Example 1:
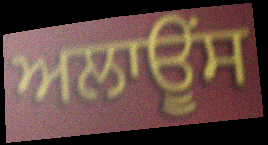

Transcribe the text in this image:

ਅਲਾਊੰਸ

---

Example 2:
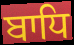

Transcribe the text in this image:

ਬਾਧਿ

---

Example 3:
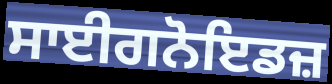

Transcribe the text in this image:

ਸਾਈਗਨੋਇਡਜ਼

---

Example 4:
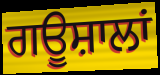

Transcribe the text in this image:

ਗਊਸ਼ਾਲਾਂ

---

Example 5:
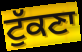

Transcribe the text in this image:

ਟੁੱਕਣਾ